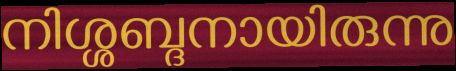
നിശ്ശബ്ദനായിരുന്നു